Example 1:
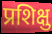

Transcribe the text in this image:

प्रशिक्षु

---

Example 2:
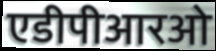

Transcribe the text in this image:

एडीपीआरओ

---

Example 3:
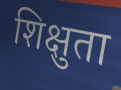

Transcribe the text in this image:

शिक्षुता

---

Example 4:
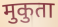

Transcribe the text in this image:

मुकुता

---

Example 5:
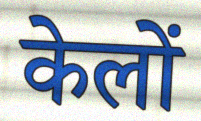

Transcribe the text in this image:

केलों